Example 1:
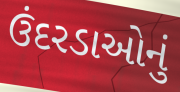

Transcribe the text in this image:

ઉંદરડાઓનું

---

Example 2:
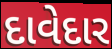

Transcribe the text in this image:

દાવેદાર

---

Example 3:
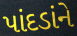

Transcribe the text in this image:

પાંદડાંને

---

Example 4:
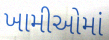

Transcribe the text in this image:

ખામીઓમાં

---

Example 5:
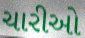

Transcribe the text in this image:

ચારીઓ